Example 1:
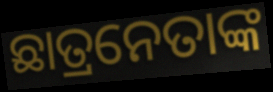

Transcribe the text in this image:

ଛାତ୍ରନେତାଙ୍କ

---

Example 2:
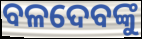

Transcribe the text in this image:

ବଳଦେବଙ୍କୁ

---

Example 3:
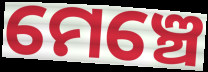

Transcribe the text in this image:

ମେଞ୍ଚେ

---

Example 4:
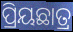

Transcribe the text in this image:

ପ୍ରିୟଛାତ୍ର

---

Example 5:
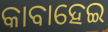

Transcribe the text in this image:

କାବାହେଇ